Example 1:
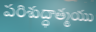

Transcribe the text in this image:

పరిశుద్ధాత్మయు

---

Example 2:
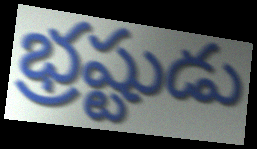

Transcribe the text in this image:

భ్రష్టుడు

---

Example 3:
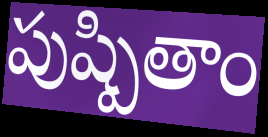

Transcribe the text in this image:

పుష్పితాం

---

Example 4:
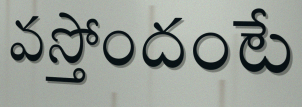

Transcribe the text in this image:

వస్తోందంటే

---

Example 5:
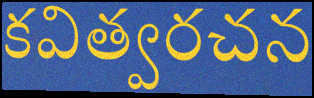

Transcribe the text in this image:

కవిత్వరచన